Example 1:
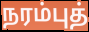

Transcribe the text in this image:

நரம்புத்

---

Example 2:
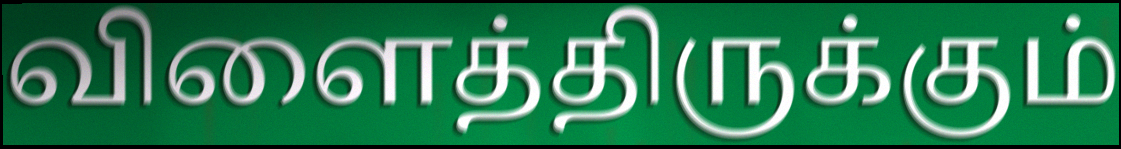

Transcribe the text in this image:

விளைத்திருக்கும்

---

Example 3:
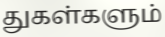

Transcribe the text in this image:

துகள்களும்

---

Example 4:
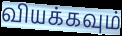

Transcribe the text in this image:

வியக்கவும்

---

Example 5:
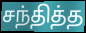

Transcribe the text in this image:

சந்தித்த